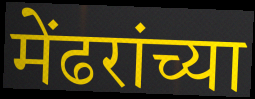
मेंढरांच्या